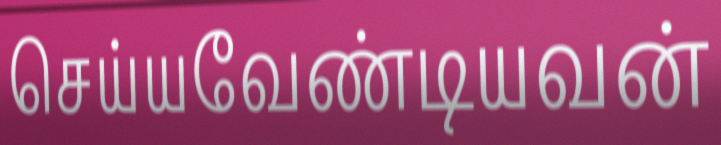
செய்யவேண்டியவன்